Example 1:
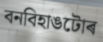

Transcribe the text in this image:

বনবিহাঙটোৰ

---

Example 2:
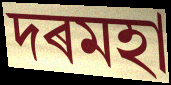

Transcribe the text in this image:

দৰমহা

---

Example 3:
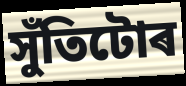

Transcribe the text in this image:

সুঁতিটোৰ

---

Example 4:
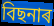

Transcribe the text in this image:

বিছনাৰ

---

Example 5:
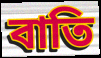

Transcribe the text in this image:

বাতি